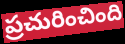
ప్రచురించింది